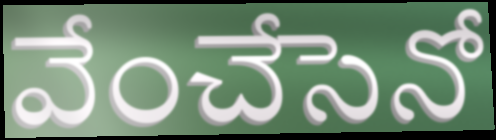
వేంచేసెనో